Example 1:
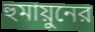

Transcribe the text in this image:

হুমায়ুনের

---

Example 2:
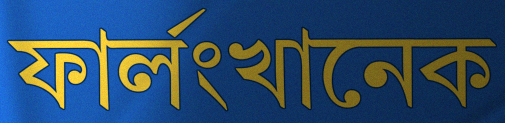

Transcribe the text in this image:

ফার্লংখানেক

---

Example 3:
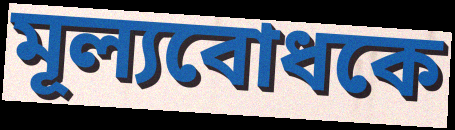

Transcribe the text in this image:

মূল্যবোধকে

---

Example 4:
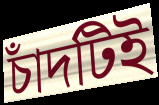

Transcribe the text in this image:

চাঁদটিই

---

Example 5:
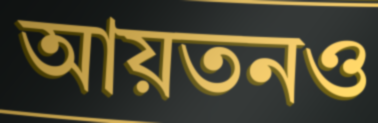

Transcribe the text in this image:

আয়তনও